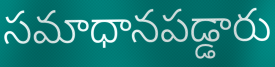
సమాధానపడ్డారు